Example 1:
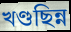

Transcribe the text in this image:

খণ্ডছিন্ন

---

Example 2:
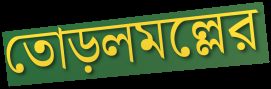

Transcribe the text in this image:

তোড়লমল্লের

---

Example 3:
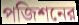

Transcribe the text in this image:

পজিশনের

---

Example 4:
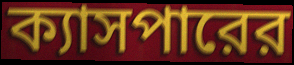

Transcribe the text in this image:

ক্যাসপারের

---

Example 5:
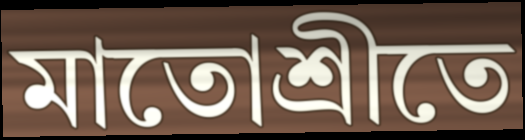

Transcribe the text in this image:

মাতোশ্রীতে